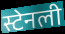
स्‍टेनली